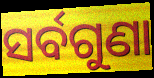
ସର୍ବଗୁଣା